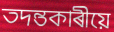
তদন্তকাৰীয়ে